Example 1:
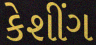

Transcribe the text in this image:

કેશીંગ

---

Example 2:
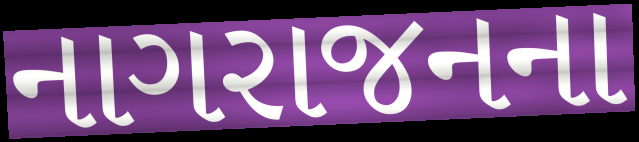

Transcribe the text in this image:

નાગરાજનના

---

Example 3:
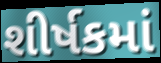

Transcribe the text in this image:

શીર્ષકમાં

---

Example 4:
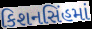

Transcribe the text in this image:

કિશનસિંહમાં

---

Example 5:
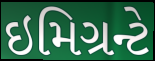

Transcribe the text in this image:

ઇમિગ્રન્ટે